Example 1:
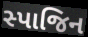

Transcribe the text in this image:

સ્પાજિન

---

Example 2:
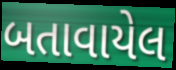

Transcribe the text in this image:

બતાવાયેલ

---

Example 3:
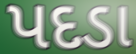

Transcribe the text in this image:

પદડા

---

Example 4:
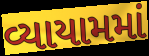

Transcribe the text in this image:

વ્યાયામમાં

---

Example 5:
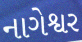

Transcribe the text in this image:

નાગેશ્વર